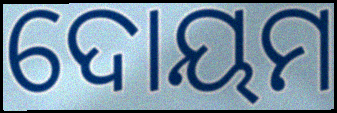
ଦୋୟମ